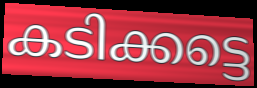
കടിക്കട്ടെ